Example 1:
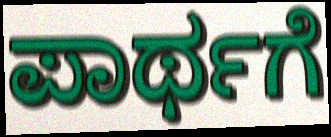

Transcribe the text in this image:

ಪಾರ್ಥಗೆ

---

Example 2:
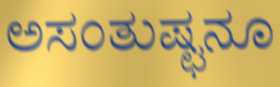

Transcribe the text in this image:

ಅಸಂತುಷ್ಟನೂ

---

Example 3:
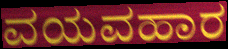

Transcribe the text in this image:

ವಯವಹಾರ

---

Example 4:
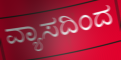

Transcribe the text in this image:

ವ್ಯಾಸದಿಂದ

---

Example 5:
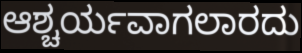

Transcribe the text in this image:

ಆಶ್ಚರ್ಯವಾಗಲಾರದು